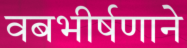
वबभीर्षणाने